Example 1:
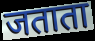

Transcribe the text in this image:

जताता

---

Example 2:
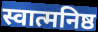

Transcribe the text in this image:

स्वात्मनिष्ठ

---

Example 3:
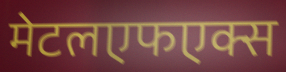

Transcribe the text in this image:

मेटलएफएक्स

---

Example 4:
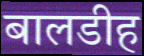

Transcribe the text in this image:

बालडीह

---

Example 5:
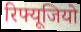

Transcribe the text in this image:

रिफ्यूजियो